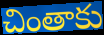
చింతాకు